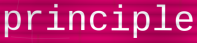
principle